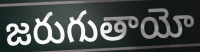
జరుగుతాయో